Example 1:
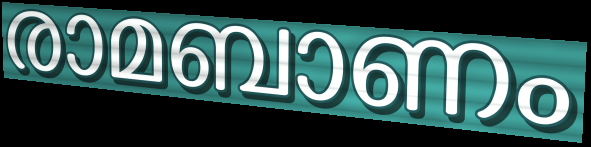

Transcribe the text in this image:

രാമബാണം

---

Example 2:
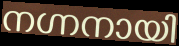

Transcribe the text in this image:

നഗ്നനായി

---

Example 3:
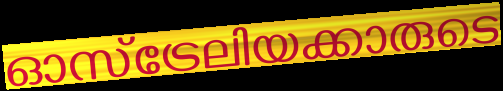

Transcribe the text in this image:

ഓസ്ട്രേലിയക്കാരുടെ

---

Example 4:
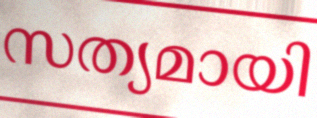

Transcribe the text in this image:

സത്യമായി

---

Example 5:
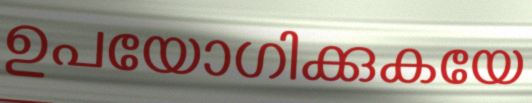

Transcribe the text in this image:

ഉപയോഗിക്കുകയേ